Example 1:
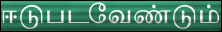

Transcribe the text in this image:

ஈடுபடவேண்டும்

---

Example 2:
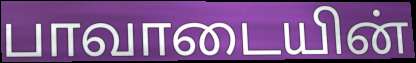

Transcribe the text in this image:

பாவாடையின்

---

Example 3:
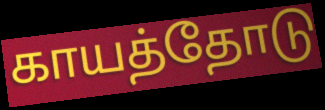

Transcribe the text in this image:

காயத்தோடு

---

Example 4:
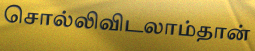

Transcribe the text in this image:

சொல்லிவிடலாம்தான்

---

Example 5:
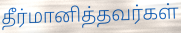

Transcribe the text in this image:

தீர்மானித்தவர்கள்